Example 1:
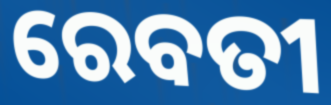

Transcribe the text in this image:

ରେବତୀ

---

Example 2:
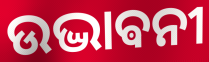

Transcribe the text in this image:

ଉଦ୍ଭାଵନୀ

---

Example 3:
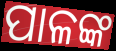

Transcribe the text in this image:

ପାଳଙ୍କ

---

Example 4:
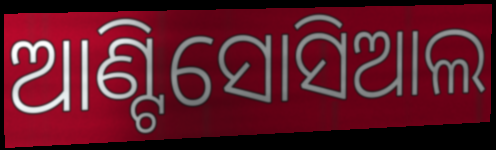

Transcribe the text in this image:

ଆଣ୍ଟିସୋସିଆଲ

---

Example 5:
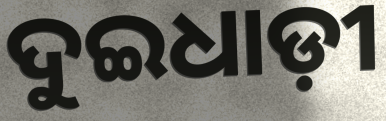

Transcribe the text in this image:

ଦୁଇଧାଡ଼ୀ